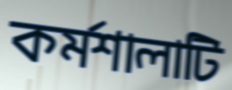
কর্মশালাটি